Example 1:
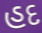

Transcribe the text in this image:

હદ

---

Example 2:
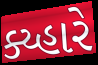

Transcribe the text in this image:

ક્ય્હારે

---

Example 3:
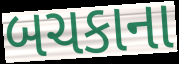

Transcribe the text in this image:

બચકાના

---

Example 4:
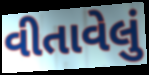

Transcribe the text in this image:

વીતાવેલું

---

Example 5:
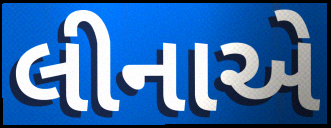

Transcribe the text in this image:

લીનાએ